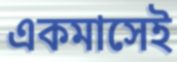
একমাসেই